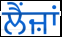
ਲੈਂਜ਼ਾਂ